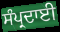
ਸੰਪ੍ਰਦਾਈ